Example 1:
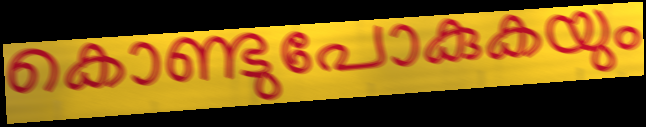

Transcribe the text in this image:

കൊണ്ടുപോകുകയും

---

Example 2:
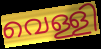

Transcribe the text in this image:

വെള്ളി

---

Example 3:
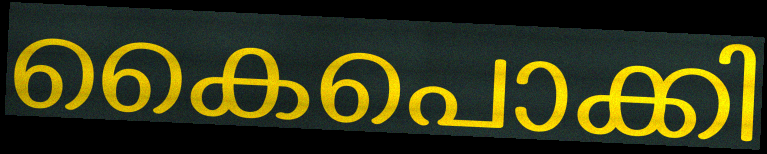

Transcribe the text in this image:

കൈപൊക്കി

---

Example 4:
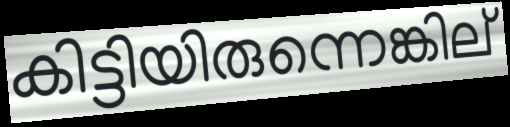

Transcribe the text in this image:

കിട്ടിയിരുന്നെങ്കില്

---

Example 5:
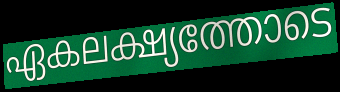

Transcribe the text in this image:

ഏകലക്ഷ്യത്തോടെ